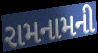
રામનામની